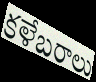
కళేబరాలు